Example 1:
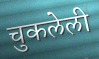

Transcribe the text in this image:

चुकलेली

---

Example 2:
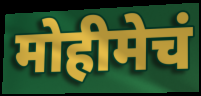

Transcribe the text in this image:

मोहीमेचं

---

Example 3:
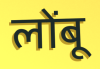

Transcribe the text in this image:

लोंबू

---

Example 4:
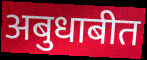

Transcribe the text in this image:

अबुधाबीत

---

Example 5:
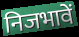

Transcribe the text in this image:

निजभावें